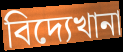
বিদ্যেখানা